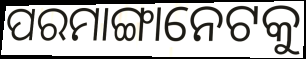
ପରମାଙ୍ଗାନେଟକୁ